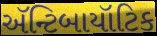
ઍન્ટિબાયૉટિક